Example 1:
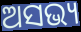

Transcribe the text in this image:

ଅସଭ୍ୟ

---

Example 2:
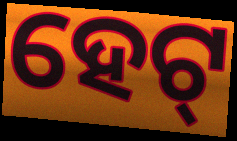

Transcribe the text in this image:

ହେଟ୍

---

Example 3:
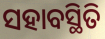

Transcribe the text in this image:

ସହାବସ୍ଥିତି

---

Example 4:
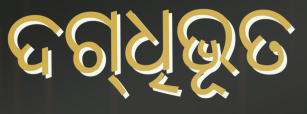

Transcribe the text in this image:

ଦଗ୍‌ଧିଭୂତ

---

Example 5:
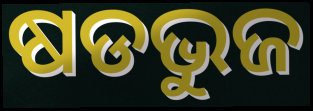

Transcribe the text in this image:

ଷଡଭୁଜ